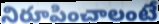
నిరూపించాలంటే